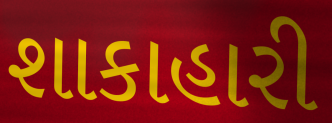
શાકાહારી